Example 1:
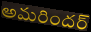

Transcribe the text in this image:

అమరిందర్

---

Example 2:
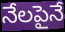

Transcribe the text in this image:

నేలపైనే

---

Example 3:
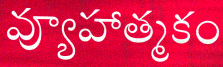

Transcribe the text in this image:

వ్యూహాత్మకం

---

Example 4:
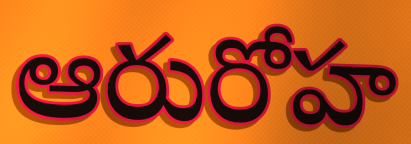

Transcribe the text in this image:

ఆరురోహ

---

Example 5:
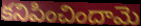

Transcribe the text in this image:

కనిపించిందామె